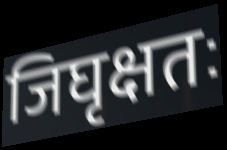
जिघृक्षतः